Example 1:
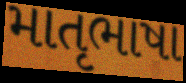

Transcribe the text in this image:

માતૃભાષા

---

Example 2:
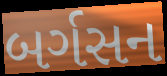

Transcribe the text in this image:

બર્ગસન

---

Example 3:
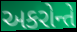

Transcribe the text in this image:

અકરોન્તે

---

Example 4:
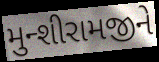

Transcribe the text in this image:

મુન્શીરામજીને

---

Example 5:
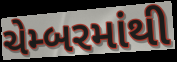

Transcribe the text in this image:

ચેમ્બરમાંથી